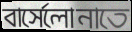
বার্সেলোনাতে